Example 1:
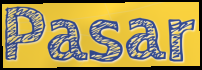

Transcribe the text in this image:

Pasar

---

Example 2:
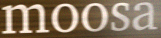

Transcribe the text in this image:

moosa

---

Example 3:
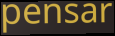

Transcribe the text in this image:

pensar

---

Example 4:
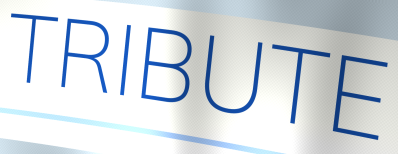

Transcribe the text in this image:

TRIBUTE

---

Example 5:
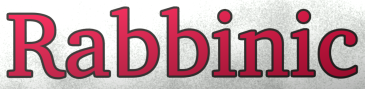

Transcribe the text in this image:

Rabbinic